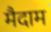
मैदाम